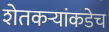
शेतकऱ्यांकडेच